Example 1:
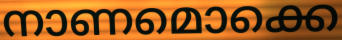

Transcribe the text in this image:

നാണമൊക്കെ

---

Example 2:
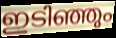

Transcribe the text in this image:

ഇടിഞ്ഞും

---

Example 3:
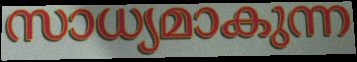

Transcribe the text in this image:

സാധ്യമാകുന്ന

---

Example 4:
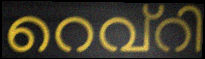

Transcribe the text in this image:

റെവ്റി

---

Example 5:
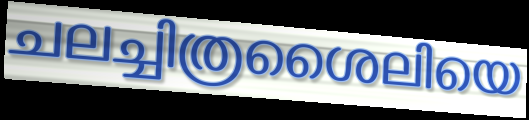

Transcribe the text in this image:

ചലച്ചിത്രശൈലിയെ